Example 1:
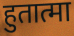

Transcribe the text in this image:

हुतात्मा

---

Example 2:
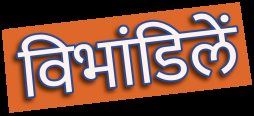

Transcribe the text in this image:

विभांडिलें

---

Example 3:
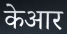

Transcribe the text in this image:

केआर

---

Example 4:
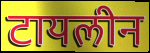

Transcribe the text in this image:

टायलीन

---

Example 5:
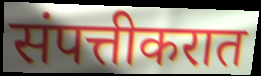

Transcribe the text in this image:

संपत्तीकरात